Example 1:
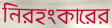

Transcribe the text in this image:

নিরহংকারের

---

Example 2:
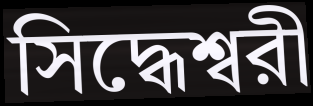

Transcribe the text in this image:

সিদ্ধেশ্বরী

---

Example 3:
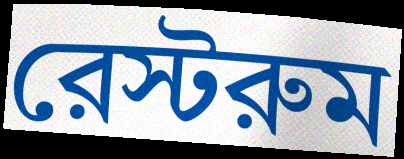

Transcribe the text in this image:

রেস্টরুম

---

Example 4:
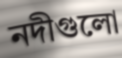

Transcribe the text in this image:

নদীগুলো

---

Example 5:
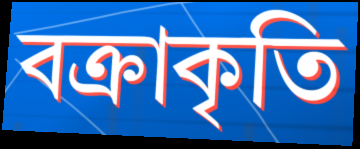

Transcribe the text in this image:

বক্রাকৃতি